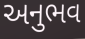
અનુભવ